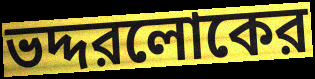
ভদ্দরলোকের